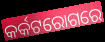
କର୍କଟରୋଗରେ